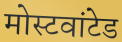
मोस्टवांटेड